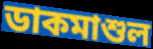
ডাকমাশুল